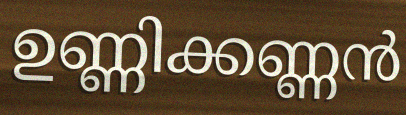
ഉണ്ണിക്കണ്ണൻ